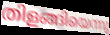
തിളങ്ങിയെന്നു